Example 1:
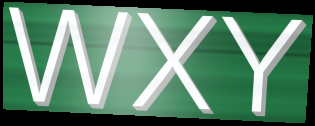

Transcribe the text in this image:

WXY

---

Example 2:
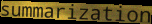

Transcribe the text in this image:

summarization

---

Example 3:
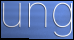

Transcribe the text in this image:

ung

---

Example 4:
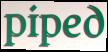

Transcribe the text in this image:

piped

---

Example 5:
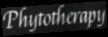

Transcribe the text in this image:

Phytotherapy